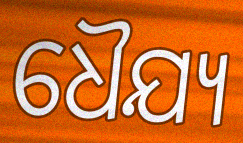
ଧୈଯ୍ୟ